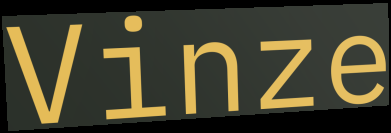
Vinze